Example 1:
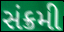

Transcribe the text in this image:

સંક્રમી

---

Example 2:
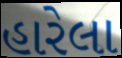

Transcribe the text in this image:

હારેલા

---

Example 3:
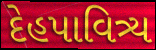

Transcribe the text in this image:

દેહપાવિત્ર્ય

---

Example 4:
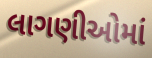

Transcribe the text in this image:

લાગણીઓમાં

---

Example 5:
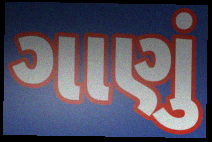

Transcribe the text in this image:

ગાણું